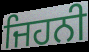
ਜਿਹਨੀ